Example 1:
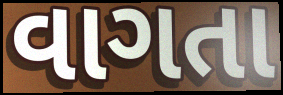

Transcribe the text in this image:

વાગતા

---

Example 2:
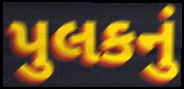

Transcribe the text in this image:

પુલકનું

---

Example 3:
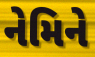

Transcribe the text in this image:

નેમિને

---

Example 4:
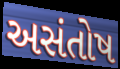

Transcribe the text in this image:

અસંતોષ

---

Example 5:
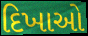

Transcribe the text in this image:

દિખાઓ